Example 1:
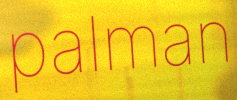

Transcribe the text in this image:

palman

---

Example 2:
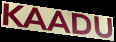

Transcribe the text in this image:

KAADU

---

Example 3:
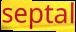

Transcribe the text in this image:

septal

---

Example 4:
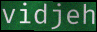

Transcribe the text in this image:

vidjeh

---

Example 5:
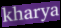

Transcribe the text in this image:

kharya